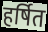
हर्षित